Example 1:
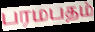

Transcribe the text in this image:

பரமபதம்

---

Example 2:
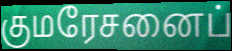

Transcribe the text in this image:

குமரேசனைப்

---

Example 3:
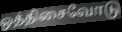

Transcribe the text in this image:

ஒத்திசைவோடு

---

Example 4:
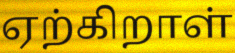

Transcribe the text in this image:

ஏற்கிறாள்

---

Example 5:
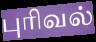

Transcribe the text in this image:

புரிவல்